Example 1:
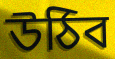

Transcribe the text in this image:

উঠিব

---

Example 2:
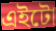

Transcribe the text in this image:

এইটো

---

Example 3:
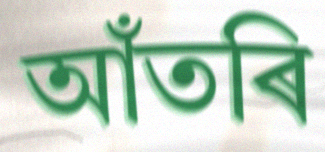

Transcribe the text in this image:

আঁতৰি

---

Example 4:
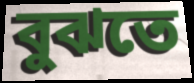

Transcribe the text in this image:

বুঝতে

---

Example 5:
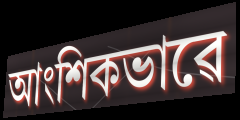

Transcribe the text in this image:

আংশিকভাৱে